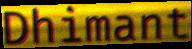
Dhimant